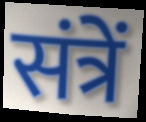
संत्रें